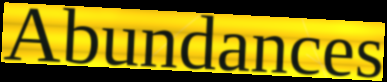
Abundances